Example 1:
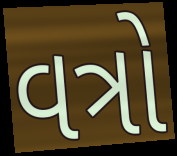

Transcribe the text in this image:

વત્રો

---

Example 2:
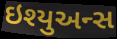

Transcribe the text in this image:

ઇશ્યુઅન્સ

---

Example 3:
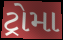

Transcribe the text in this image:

ટ્રોમા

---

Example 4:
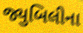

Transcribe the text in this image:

જ્યુબિલીના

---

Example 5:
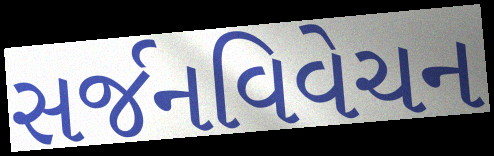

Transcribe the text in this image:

સર્જનવિવેચન